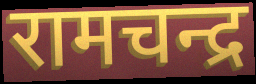
रामचन्द्र